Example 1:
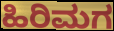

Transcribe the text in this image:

ಹಿರಿಮಗ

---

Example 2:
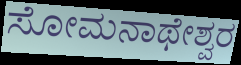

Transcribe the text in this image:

ಸೋಮನಾಥೇಶ್ವರ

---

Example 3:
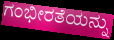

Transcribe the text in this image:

ಗಂಭೀರತೆಯನ್ನು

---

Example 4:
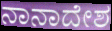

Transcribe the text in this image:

ನಾನಾದೇಶ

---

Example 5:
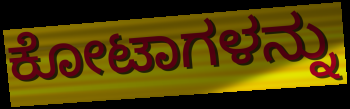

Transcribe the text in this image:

ಕೋಟಾಗಳನ್ನು